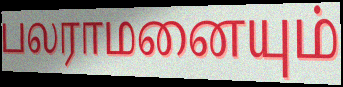
பலராமனையும்